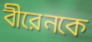
বীরেনকে